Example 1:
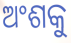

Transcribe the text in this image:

ଅଂଶକୁ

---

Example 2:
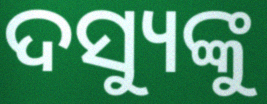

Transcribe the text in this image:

ଦସ୍ୟୁଙ୍କୁ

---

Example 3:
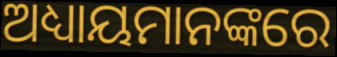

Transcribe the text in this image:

ଅଧ୍ୟାୟମାନଙ୍କରେ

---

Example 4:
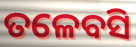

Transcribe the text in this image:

ତଳେବସି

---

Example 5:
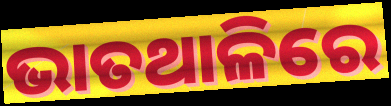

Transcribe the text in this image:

ଭାତଥାଳିରେ